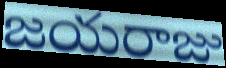
జయరాజు